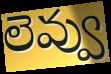
లెవ్వు